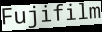
Fujifilm